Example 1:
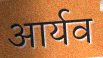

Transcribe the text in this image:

आर्यव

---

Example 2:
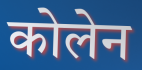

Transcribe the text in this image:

कोलेन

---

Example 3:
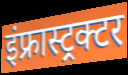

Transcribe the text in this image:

इंफ्रास्ट्रक्टर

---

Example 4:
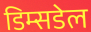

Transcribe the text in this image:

डिम्सडेल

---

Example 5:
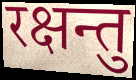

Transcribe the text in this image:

रक्षन्तु